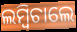
ଲମ୍ବିଚାଲେ